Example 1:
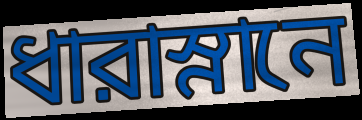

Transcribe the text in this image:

ধারাস্নানে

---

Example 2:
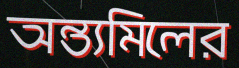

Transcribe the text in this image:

অন্ত্যমিলের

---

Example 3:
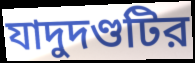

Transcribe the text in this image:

যাদুদণ্ডটির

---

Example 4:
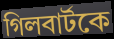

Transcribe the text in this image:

গিলবার্টকে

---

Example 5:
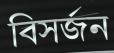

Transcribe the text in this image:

বিসর্জন